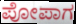
ಪೋಪಾಗ